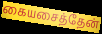
கையசைத்தேன்